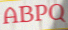
ABPQ